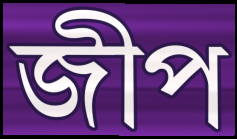
জীপ